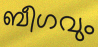
ബീഗവും